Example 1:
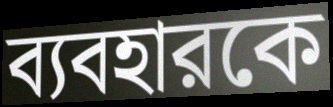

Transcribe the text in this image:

ব্যবহারকে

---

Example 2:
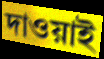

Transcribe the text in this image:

দাওয়াই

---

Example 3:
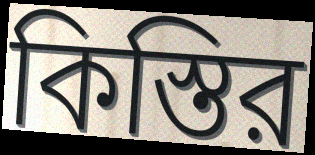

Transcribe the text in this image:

কিস্তির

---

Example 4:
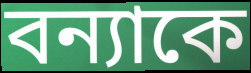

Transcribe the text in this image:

বন্যাকে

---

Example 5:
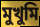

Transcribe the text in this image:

মুখুমি